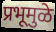
प्रभूमुळे